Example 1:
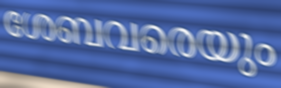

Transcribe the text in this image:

ശേബവരെയും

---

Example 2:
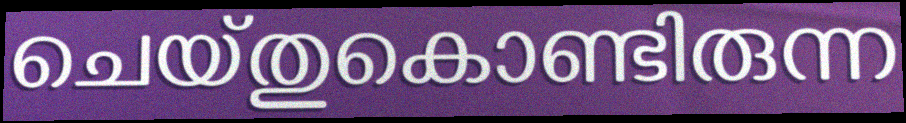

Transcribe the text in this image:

ചെയ്തുകൊണ്ടിരുന്ന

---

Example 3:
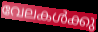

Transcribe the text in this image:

വേലകൾക്കു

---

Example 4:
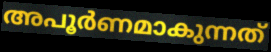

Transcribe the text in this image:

അപൂർണമാകുന്നത്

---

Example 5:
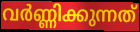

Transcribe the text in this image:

വർണ്ണിക്കുന്നത്